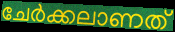
ചേർക്കലാണത്